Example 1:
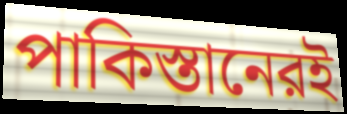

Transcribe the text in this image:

পাকিস্তানেরই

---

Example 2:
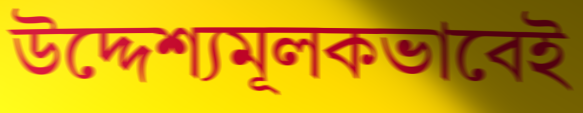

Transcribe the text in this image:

উদ্দেশ্যমূলকভাবেই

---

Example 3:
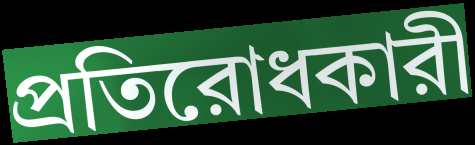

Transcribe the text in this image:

প্রতিরোধকারী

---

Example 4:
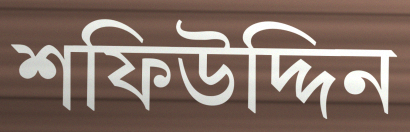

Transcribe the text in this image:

শফিউদ্দিন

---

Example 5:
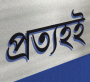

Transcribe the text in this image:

প্রত্যহই